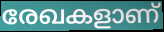
രേഖകളാണ്